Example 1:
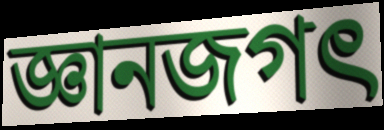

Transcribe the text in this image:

জ্ঞানজগৎ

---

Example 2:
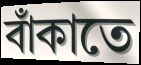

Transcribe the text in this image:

বাঁকাতে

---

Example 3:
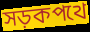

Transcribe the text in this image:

সড়কপথে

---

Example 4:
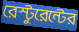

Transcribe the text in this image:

রেস্টুরেন্টের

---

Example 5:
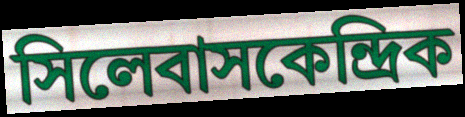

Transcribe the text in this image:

সিলেবাসকেন্দ্রিক